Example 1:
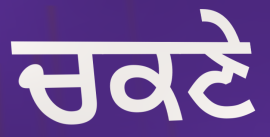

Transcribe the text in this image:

ਚਕਣੇ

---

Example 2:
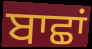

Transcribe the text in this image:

ਬਾਛਾਂ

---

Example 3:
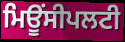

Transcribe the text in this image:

ਮਿਊਂਸੀਪਲਟੀ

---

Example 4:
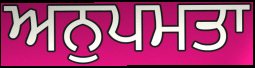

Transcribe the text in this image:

ਅਨੁਪਮਤਾ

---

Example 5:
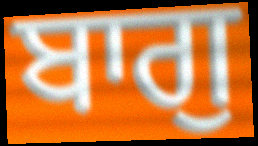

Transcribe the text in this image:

ਬਾਗੁ